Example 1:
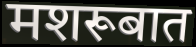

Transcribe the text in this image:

मशरूबात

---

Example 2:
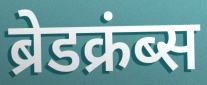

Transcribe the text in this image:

ब्रेडक्रंब्स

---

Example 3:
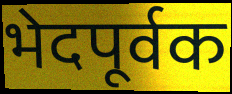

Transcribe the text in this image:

भेदपूर्वक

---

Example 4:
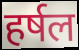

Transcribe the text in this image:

हर्षल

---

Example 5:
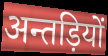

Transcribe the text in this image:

अन्तड़ियों